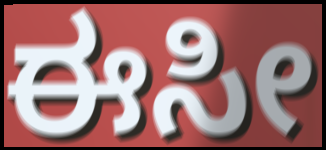
ಈಸೀ